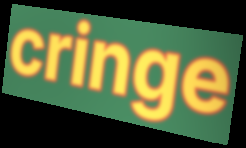
cringe